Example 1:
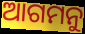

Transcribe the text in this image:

ଆଗମନୁ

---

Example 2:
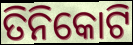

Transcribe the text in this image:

ତିନିକୋଟି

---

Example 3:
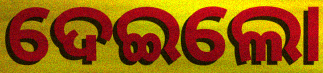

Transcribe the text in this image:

ଦେଇଲୋ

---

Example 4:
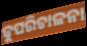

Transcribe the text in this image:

କୁପରିଚାଳନା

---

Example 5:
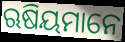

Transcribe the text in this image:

ଋଷିୟମାନେ